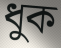
ধুক